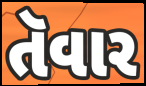
તૅવાર